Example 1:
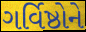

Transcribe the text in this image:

ગર્વિષ્ઠોને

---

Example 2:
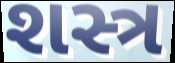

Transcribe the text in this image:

શસ્ત્ર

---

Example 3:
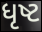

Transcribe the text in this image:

ધૃષ્ટ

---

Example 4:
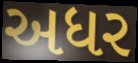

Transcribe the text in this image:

અધર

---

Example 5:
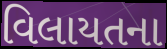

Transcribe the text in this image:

વિલાયતના